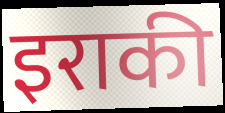
इराकी